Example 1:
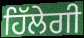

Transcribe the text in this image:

ਹਿੱਲੇਗੀ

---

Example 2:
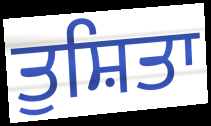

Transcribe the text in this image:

ਤੁਸ਼ਿਤਾ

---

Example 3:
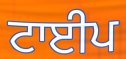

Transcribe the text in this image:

ਟਾਈਪ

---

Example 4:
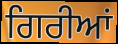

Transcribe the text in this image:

ਗਿਰੀਆਂ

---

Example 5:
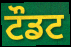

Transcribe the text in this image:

ਟੌਡਟ